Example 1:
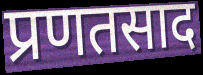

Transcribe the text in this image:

प्रणतसाद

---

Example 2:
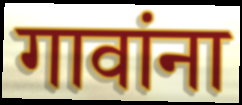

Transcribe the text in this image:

गावांना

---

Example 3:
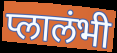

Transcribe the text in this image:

प्लालंभी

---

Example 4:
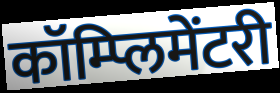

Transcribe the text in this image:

कॉम्प्लिमेंटरी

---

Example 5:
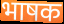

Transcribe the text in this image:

भाषक